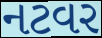
નટવર